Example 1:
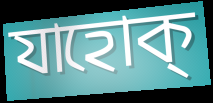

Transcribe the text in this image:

যাহোক্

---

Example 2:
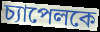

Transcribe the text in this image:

চ্যাপেলকে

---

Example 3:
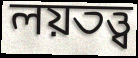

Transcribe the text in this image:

লয়তত্ত্ব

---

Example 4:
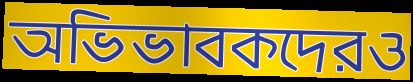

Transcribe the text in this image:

অভিভাবকদেরও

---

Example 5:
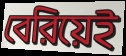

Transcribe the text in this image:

বেরিয়েই